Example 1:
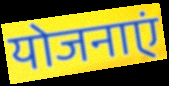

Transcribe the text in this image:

योजनाएं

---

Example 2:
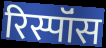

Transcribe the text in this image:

रिस्पॉंस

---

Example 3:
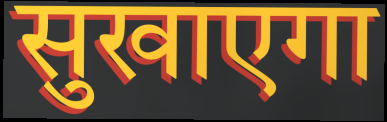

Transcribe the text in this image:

सुखाएगा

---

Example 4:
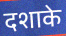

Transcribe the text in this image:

दशाके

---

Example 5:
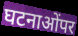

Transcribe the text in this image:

घटनाओंपर